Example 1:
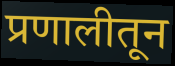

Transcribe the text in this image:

प्रणालीतून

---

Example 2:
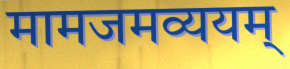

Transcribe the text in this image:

मामजमव्ययम्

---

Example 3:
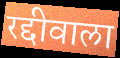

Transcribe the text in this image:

रद्दीवाला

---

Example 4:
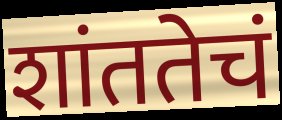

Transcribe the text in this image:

शांततेचं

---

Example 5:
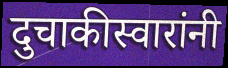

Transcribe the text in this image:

दुचाकीस्वारांनी